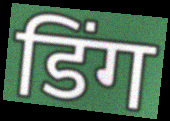
डिंग